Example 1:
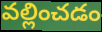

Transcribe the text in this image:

వల్లించడం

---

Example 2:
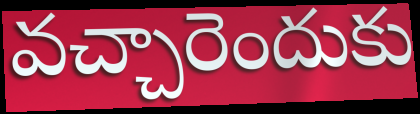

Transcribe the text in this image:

వచ్చారెందుకు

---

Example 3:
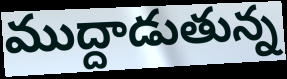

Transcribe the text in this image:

ముద్దాడుతున్న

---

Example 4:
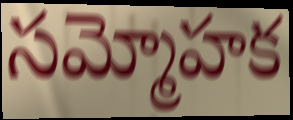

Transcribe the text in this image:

సమ్మోహక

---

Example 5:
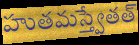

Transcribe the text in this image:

హుతమస్త్వేతత్